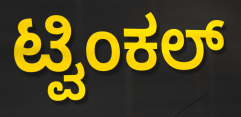
ಟ್ವಿಂಕಲ್